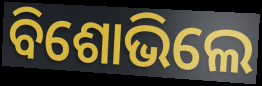
ବିଶୋଭିଲେ